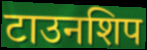
टाउनशिप